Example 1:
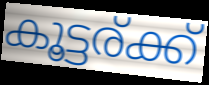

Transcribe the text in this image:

കൂട്ടര്ക്ക്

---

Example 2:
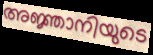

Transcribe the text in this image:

അജ്ഞാനിയുടെ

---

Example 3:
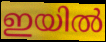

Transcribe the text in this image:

ഇയിൽ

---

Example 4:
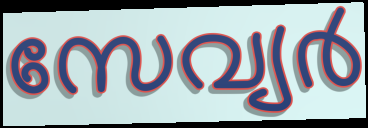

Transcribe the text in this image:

സേവ്യർ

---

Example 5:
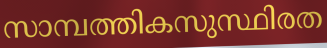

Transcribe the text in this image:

സാമ്പത്തികസുസ്ഥിരത